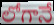
లోగానే